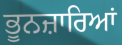
ਭੂਨਜ਼ਾਰਿਆਂ